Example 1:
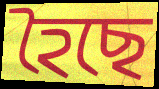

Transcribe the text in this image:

হৈছে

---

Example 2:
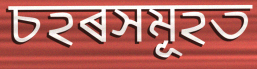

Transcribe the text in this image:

চহৰসমূহত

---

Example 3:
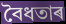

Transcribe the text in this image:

বৈধতাৰ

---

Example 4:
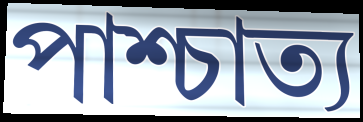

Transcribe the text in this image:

পাশ্চাত্য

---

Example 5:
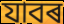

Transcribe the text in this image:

যাবৰ